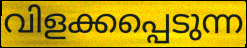
വിളക്കപ്പെടുന്ന